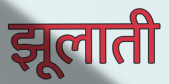
झूलाती